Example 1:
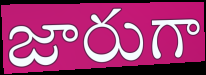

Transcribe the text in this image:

జారుగా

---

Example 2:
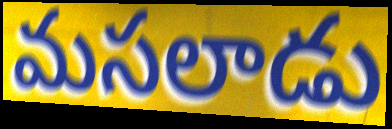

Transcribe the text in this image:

మసలాడు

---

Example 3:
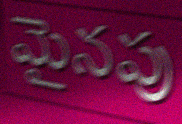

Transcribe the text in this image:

మైనపు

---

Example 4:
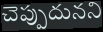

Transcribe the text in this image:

చెప్పుదునని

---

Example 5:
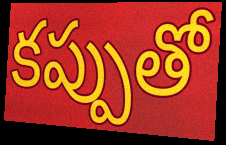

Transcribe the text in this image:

కప్పుతో